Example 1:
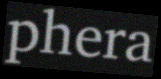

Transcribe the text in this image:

phera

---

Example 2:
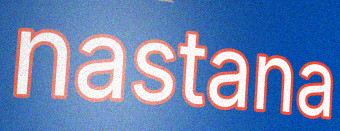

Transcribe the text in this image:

nastana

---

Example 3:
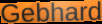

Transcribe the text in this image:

Gebhard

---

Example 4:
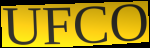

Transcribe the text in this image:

UFCO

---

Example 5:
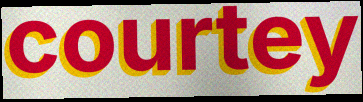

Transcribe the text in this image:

courtey